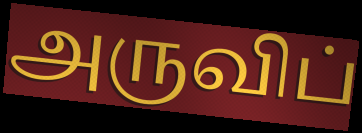
அருவிப்